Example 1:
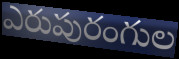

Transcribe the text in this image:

ఎరుపురంగుల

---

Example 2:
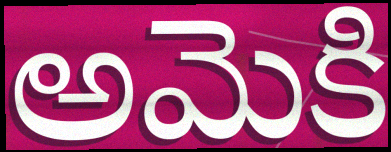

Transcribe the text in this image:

అమెకి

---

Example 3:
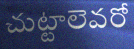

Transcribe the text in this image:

చుట్టాలెవరో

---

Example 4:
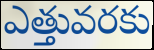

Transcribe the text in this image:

ఎత్తువరకు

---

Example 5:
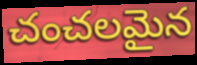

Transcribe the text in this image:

చంచలమైన